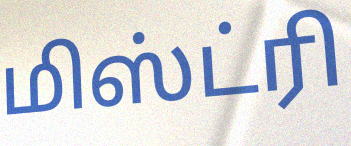
மிஸ்ட்ரி